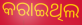
କରାଇଥିଲ